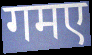
गमए